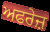
ਅਫਰੇਜ਼